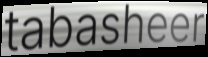
tabasheer